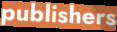
publishers